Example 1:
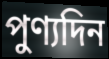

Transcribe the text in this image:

পুণ্যদিন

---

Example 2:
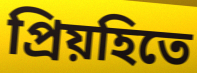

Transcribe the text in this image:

প্রিয়হিতে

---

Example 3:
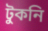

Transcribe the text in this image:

টুকনি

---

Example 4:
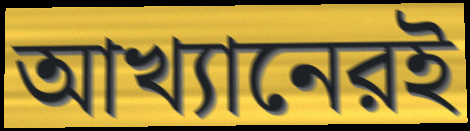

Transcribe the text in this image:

আখ্যানেরই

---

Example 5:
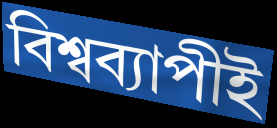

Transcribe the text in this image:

বিশ্বব্যাপীই